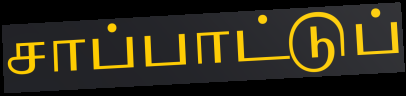
சாப்பாட்டுப்